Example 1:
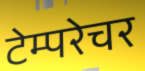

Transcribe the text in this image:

टेम्परेचर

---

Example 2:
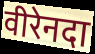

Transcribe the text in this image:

वीरेनदा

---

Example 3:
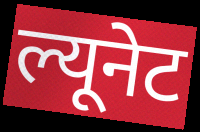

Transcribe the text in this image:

ल्यूनेट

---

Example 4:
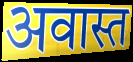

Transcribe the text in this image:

अवास्त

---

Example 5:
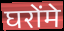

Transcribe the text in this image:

घरोंमे